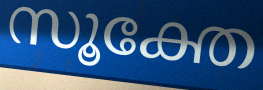
സൂക്തേ